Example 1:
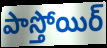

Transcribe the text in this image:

పాస్తోయిర్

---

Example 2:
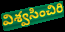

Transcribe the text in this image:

విశ్వసించిరి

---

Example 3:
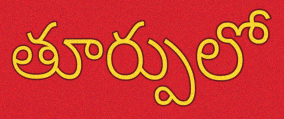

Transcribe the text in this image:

తూర్పులో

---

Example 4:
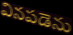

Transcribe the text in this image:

వినపడెను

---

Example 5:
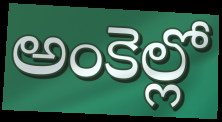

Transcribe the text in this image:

అంకెల్లో